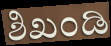
ಶಿಖಂಡಿ